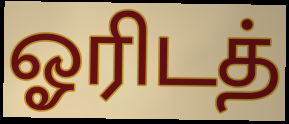
ஓரிடத்